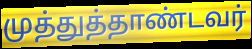
முத்துத்தாண்டவர்